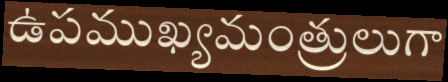
ఉపముఖ్యమంత్రులుగా